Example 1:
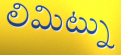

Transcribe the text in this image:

లిమిట్ను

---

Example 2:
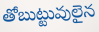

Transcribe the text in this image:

తోబుట్టువులైన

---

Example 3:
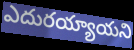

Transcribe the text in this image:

ఎదురయ్యాయని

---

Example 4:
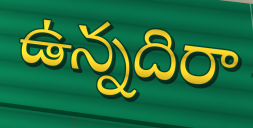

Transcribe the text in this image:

ఉన్నదిరా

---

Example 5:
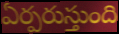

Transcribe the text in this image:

ఏర్పరుస్తుంది